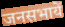
जनसभायें